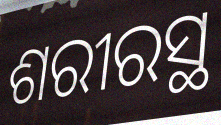
ଶରୀରସ୍ଥ